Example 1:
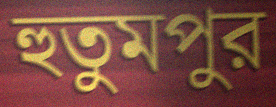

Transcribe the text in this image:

হুতুমপুর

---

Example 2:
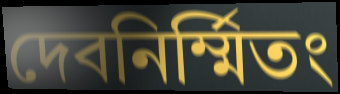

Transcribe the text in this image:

দেবনির্ম্মিতং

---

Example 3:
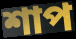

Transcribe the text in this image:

শাপ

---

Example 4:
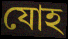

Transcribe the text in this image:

যোহ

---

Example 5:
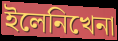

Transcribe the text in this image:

ইলেনিখেনা